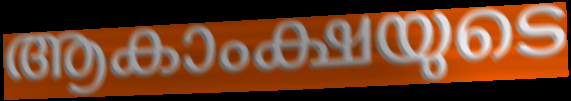
ആകാംക്ഷയുടെ